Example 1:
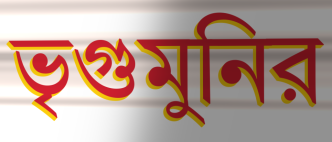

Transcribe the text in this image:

ভৃগুমুনির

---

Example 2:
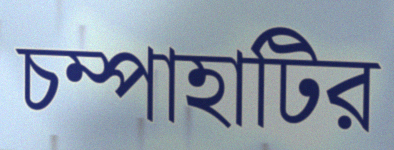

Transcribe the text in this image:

চম্পাহাটির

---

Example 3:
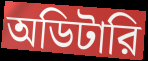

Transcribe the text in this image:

অডিটারি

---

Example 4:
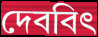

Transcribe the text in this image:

দেববিৎ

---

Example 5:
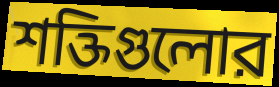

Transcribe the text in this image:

শক্তিগুলোর